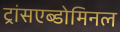
ट्रांसएब्डोमिनल